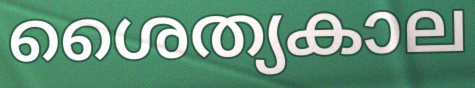
ശൈത്യകാല